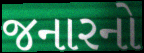
જનારનો